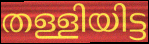
തള്ളിയിട്ട